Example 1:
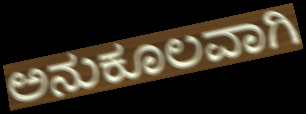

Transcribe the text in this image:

ಅನುಕೂಲವಾಗಿ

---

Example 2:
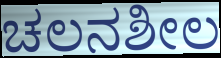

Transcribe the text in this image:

ಚಲನಶೀಲ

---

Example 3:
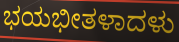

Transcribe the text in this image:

ಭಯಭೀತಳಾದಳು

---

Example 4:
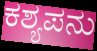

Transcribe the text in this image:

ಕಶ್ಯಪನು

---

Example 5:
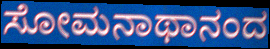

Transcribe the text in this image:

ಸೋಮನಾಥಾನಂದ